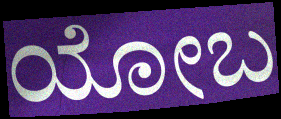
ಯೋಬ